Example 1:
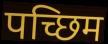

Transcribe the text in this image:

पच्छिम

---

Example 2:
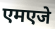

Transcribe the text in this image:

एमएजे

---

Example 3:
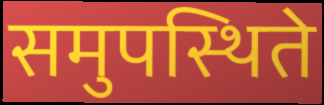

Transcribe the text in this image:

समुपस्थिते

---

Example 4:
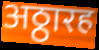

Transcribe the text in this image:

अठ्ठारह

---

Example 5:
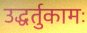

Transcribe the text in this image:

उद्धर्तुकामः